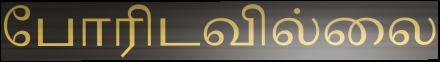
போரிடவில்லை